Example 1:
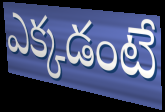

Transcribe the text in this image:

ఎక్కడంటే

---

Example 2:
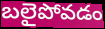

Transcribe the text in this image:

బలైపోవడం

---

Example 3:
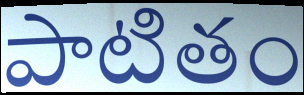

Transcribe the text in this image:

పాటితం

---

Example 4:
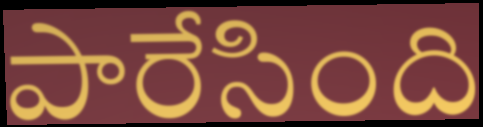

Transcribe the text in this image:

పారేసింది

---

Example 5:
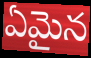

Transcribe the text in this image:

ఏమైన